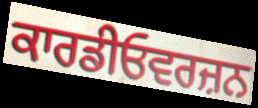
ਕਾਰਡੀਓਵਰਜ਼ਨ